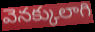
వెనక్కులాగి